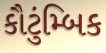
કૌટુંમ્બિક